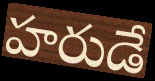
హరుడే